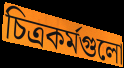
চিত্রকর্মগুলো